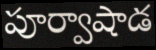
పూర్వాషాడ